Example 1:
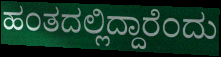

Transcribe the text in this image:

ಹಂತದಲ್ಲಿದ್ದಾರೆಂದು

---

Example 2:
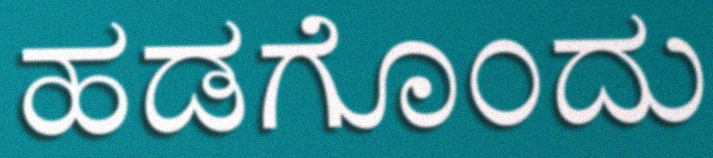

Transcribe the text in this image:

ಹಡಗೊಂದು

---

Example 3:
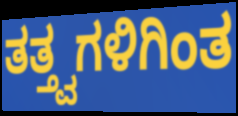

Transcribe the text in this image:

ತತ್ತ್ವಗಳಿಗಿಂತ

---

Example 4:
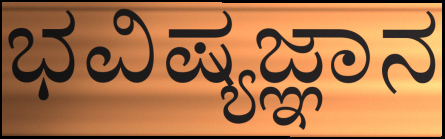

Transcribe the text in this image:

ಭವಿಷ್ಯಜ್ಞಾನ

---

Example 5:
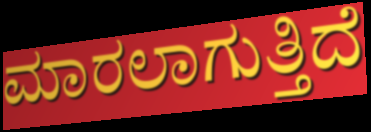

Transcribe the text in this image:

ಮಾರಲಾಗುತ್ತಿದೆ